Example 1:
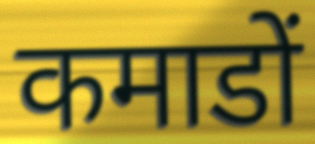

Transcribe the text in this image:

कमाडों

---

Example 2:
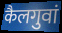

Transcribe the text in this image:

कैलगुवां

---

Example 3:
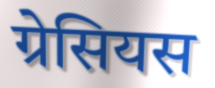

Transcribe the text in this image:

ग्रेसियस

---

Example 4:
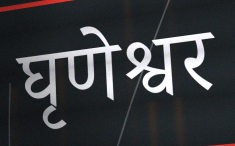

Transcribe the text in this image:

घृणेश्वर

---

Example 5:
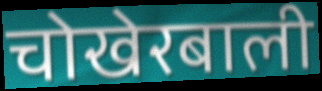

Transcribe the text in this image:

चोखेरबाली